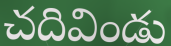
చదివిండు